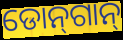
ଡୋନ୍‌ଗାନ୍